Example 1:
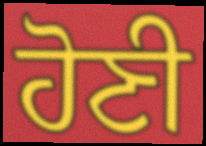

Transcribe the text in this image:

ਹੋਣੀ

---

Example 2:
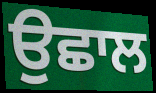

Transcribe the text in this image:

ਉਛਾਲ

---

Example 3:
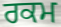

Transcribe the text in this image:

ਰਕਮ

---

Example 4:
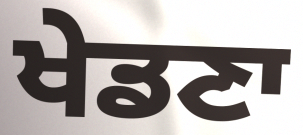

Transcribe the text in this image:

ਖੇਡਣਾ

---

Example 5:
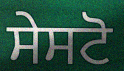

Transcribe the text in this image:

ਸੇਸਟੋ